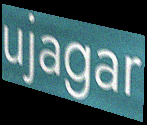
ujagar